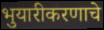
भुयारीकरणाचे